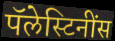
पॅलेस्टिनींस